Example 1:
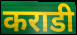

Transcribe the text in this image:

कराडी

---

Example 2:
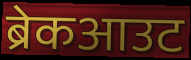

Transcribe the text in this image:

ब्रेकआउट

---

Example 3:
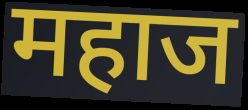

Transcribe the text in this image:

महाज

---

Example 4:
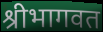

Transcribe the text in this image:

श्रीभागवत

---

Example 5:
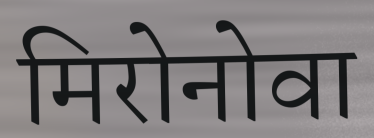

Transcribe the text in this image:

मिरोनोवा